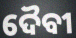
ଦୈବୀ